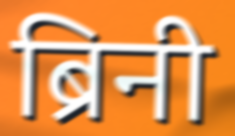
ब्रिनी